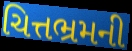
ચિત્તભ્રમની